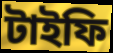
টাইফি